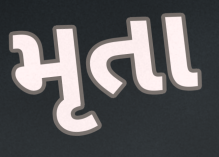
મૃતા